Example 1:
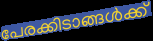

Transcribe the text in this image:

പേരക്കിടാങ്ങൾക്ക്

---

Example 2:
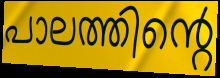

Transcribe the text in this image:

പാലത്തിന്റെ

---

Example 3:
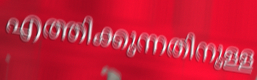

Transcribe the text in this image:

എത്തിക്കുന്നതിനുള്ള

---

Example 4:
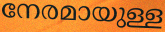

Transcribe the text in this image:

നേരമായുള്ള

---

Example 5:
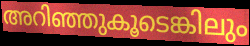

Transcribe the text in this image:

അറിഞ്ഞുകൂടെങ്കിലും